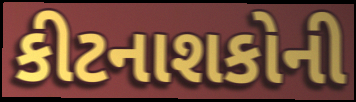
કીટનાશકોની